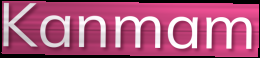
Kanmam